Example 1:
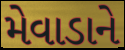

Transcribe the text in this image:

મેવાડાને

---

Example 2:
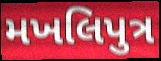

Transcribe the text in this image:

મખલિપુત્ર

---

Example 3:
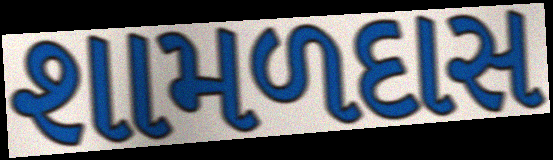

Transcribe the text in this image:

શામળદાસ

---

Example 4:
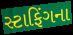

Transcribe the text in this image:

સ્ટાફિંગના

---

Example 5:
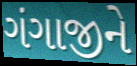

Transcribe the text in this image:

ગંગાજીને